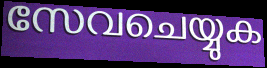
സേവചെയ്യുക